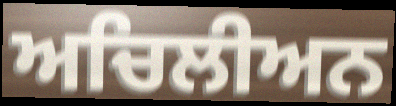
ਅਚਿਲੀਅਨ